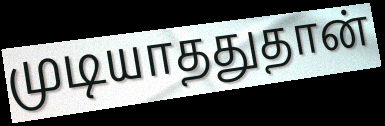
முடியாததுதான்